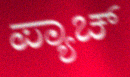
ಪ್ಯಾಚ್